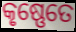
କୃଷ୍ଣେତେ